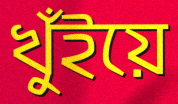
খুঁইয়ে